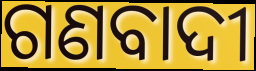
ଗଣବାଦୀ